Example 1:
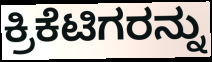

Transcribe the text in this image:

ಕ್ರಿಕೆಟಿಗರನ್ನು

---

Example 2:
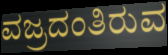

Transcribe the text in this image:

ವಜ್ರದಂತಿರುವ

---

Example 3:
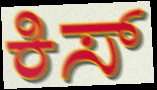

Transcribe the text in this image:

ಕಿಸ್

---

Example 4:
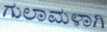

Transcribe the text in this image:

ಗುಲಾಮಳಾಗಿ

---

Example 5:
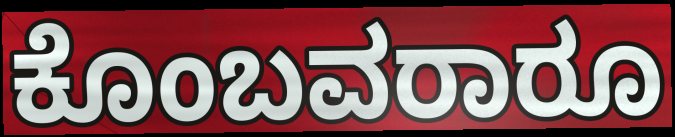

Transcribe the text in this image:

ಕೊಂಬವರಾರೂ